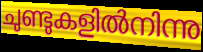
ചുണ്ടുകളിൽനിന്നു